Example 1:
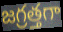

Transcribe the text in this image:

జగ్రత్తగా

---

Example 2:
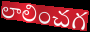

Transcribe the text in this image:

లాలించగ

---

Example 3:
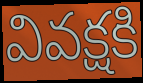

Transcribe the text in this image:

వివక్షకి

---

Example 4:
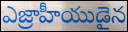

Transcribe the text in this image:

ఎజ్రాహీయుడైన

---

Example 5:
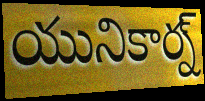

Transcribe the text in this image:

యునికార్న్